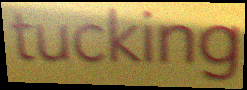
tucking